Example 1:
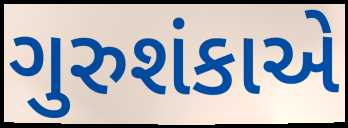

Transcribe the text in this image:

ગુરુશંકાએ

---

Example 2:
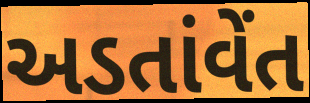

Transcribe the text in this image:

અડતાંવેંત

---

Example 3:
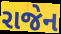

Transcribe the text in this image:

રાજેન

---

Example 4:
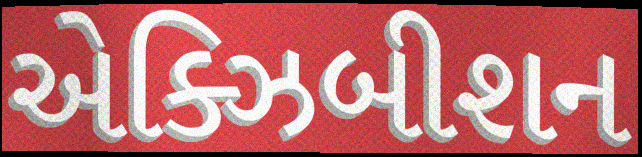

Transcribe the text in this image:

એક્ઝિબીશન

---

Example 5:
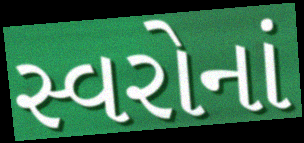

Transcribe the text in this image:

સ્વરોનાં